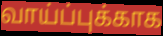
வாய்ப்புக்காக